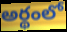
అర్థంలో